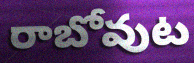
రాబోవుట